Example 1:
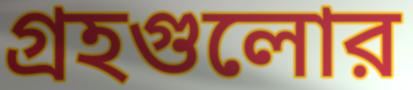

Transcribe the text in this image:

গ্রহগুলোর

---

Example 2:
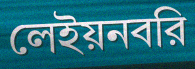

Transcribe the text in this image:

লেইয়নবরি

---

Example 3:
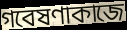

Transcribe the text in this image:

গবেষণাকাজে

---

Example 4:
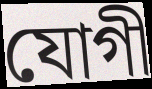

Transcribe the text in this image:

যোগী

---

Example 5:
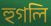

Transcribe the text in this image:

হুগলি